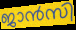
ജാൻസി